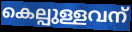
കെല്പുള്ളവന്